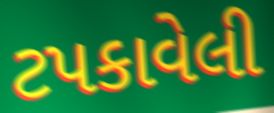
ટપકાવેલી